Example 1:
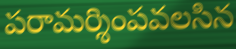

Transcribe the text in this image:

పరామర్శింపవలసిన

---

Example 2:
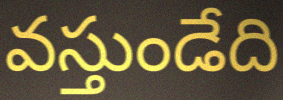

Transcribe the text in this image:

వస్తుండేది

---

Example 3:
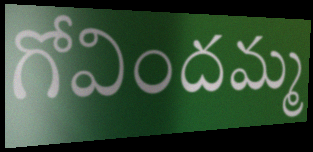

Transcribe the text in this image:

గోవిందమ్మ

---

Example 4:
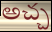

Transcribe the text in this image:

అచ్చ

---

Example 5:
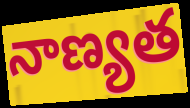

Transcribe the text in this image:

నాణ్యత